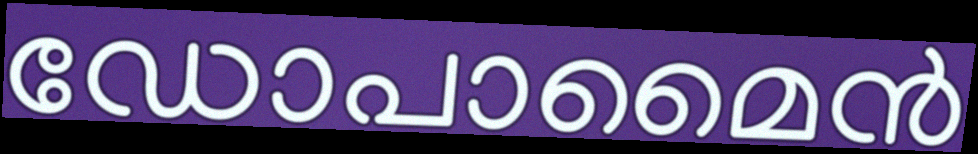
ഡോപാമൈൻ